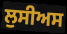
ਲੁਸੀਅਸ